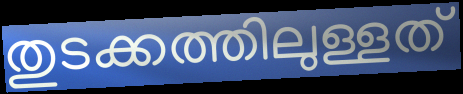
തുടക്കത്തിലുള്ളത്